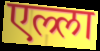
एल्ला